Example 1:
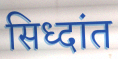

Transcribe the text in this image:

सिध्दांत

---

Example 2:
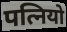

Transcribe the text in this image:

पत्नियो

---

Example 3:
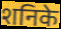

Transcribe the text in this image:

शनिके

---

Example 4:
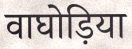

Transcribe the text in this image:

वाघोड़िया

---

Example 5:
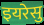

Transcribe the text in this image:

इयरेसु